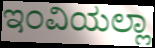
ಇಂವಿಯಲ್ಲಾ